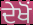
ਦੇਖੋਂ